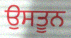
ਉਸਤੂਨ